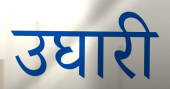
उघारी